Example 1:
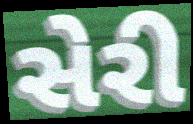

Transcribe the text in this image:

સેરી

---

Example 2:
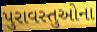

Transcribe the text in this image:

પુરાવસ્તુઓના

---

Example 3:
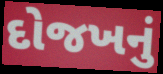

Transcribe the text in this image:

દોજખનું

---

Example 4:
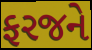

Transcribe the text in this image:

ફરજને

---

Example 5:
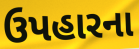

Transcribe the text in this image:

ઉપહારના